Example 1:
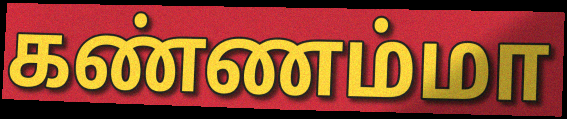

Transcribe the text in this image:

கண்ணம்மா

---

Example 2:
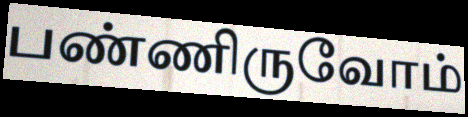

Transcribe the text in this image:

பண்ணிருவோம்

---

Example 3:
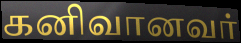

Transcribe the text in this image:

கனிவானவர்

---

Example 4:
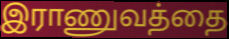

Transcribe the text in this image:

இராணுவத்தை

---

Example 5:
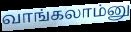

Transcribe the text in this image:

வாங்கலாம்னு